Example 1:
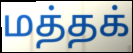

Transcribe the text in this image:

மத்தக்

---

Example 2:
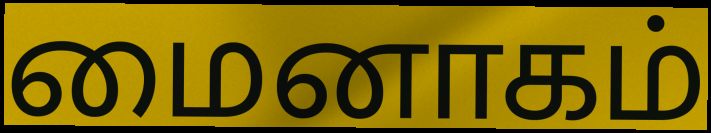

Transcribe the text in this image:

மைனாகம்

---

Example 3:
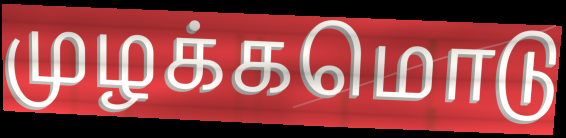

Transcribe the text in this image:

முழக்கமொடு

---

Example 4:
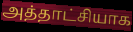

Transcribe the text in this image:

அத்தாட்சியாக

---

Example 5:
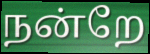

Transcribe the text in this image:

நன்றே